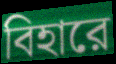
বিহারে